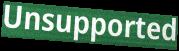
Unsupported